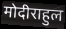
मोदीराहुल